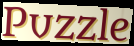
Puzzle